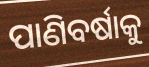
ପାଣିବର୍ଷାକୁ